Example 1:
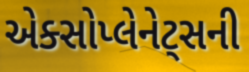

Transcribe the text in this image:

એક્સોપ્લેનેટ્સની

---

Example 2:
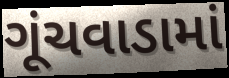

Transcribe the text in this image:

ગૂંચવાડામાં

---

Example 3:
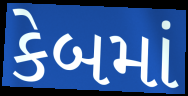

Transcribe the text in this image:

કેબમાં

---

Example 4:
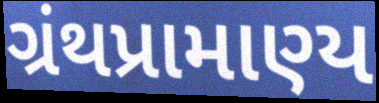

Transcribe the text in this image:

ગ્રંથપ્રામાણ્ય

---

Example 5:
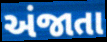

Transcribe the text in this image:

અંજાતા